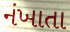
નંખાતા